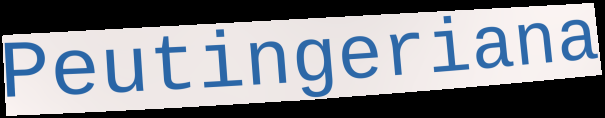
Peutingeriana